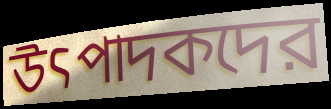
উৎপাদকদের